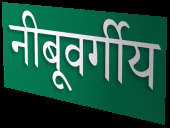
नीबूवर्गीय